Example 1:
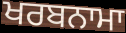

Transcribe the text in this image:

ਖਰਬਨਾਮਾ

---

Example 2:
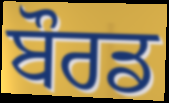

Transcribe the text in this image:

ਬੌਰਡ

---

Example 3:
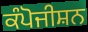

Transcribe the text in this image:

ਕੰਪੋਜੀਸ਼ਨ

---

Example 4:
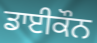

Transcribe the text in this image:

ਡਾਈਕੌਨ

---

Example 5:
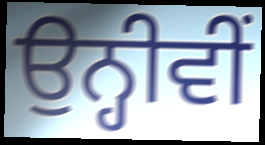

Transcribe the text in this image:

ਉਨ੍ਹੀਵੀਂ